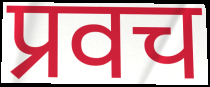
प्रवच